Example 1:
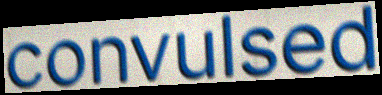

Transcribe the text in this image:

convulsed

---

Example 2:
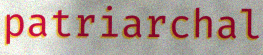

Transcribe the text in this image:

patriarchal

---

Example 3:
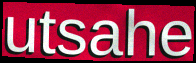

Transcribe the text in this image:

utsahe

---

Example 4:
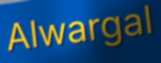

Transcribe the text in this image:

Alwargal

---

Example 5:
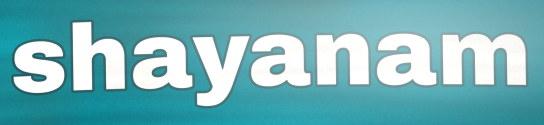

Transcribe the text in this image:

shayanam